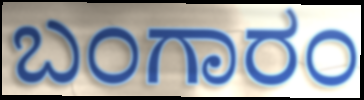
ಬಂಗಾರಂ